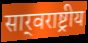
सार्वराष्ट्रीय